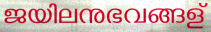
ജയിലനുഭവങ്ങള്